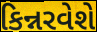
કિન્નરવેશે